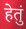
हेतुं